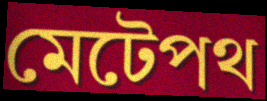
মেটেপথ